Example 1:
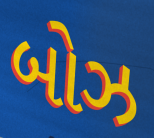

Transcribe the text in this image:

બોઝ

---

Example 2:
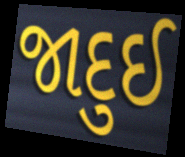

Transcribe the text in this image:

જાદુઈ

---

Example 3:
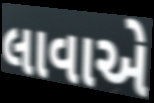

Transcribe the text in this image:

લાવાએ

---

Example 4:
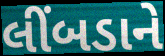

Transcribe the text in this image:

લીંબડાને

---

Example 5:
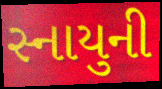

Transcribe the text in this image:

સ્નાયુની